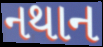
નથાન